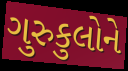
ગુરુકુલોને